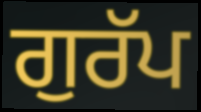
ਗੁਰੱਪ